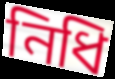
নিধি